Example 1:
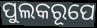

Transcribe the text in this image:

ପୁଲକରୂପେ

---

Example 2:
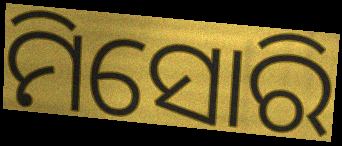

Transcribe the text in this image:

ମିସୋରି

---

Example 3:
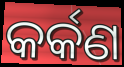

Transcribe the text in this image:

କର୍କଣ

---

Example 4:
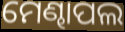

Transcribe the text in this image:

ମେଣ୍ଢାପଲ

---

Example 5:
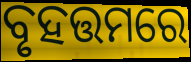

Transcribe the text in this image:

ବୃହତ୍ତମରେ